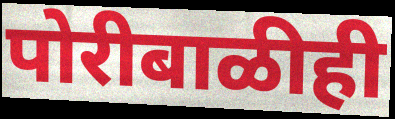
पोरीबाळीही